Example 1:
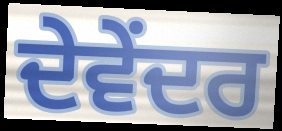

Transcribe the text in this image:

ਦੇਵੇਂਦਰ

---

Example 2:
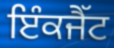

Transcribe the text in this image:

ਇੰਕਜੈੱਟ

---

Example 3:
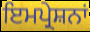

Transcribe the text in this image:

ਇਮਪ੍ਰੇਸ਼ਨਾਂ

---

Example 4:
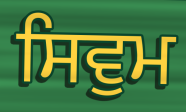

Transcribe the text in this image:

ਸਿਵੁਮ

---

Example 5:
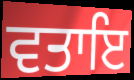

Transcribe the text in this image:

ਵਤਾਇ